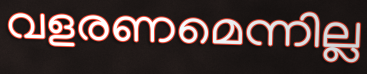
വളരണമെന്നില്ല